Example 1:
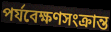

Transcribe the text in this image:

পর্যবেক্ষণসংক্রান্ত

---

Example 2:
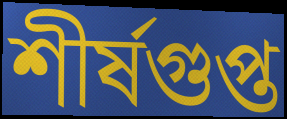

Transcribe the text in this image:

শীর্ষগুপ্ত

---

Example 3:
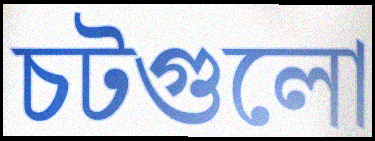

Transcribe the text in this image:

চটগুলো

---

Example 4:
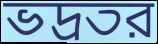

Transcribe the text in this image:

ভদ্রতর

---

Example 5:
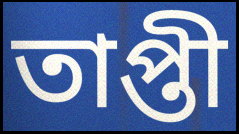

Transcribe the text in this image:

তাপ্তী